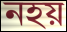
নহয়